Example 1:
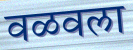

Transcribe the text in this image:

वळवला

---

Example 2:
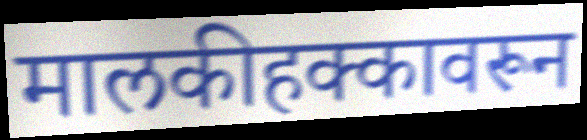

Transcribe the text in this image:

मालकीहक्कावरून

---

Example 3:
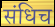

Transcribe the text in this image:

संधिच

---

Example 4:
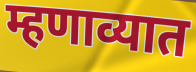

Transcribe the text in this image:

म्हणाव्यात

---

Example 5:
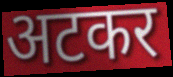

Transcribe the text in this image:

अटकर